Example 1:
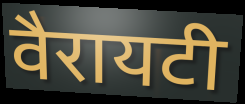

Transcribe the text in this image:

वैरायटी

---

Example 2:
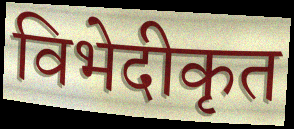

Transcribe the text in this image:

विभेदीकृत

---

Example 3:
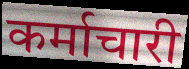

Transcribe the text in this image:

कर्माचारी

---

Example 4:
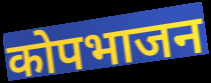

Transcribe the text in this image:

कोपभाजन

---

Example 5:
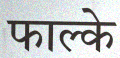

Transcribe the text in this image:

फाल्के